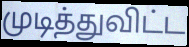
முடித்துவிட்ட